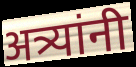
अत्र्यांनी